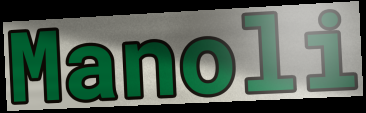
Manoli